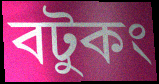
বটুকং